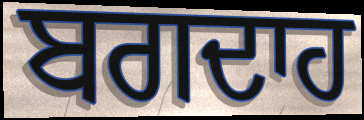
ਬਗਦਾਹ